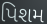
પિશમ